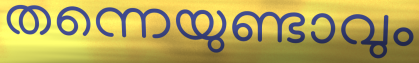
തന്നെയുണ്ടാവും